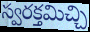
స్వరక్తమిచ్చి